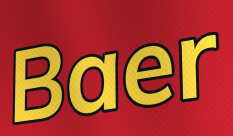
Baer